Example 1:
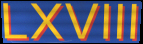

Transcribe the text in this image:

LXVIII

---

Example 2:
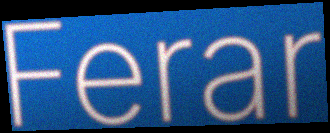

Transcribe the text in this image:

Ferar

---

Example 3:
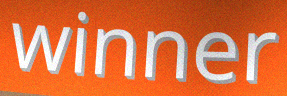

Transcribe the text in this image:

winner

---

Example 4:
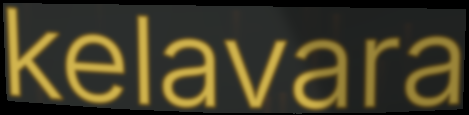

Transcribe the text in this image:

kelavara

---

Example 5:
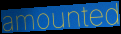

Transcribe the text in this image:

amounted